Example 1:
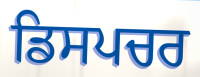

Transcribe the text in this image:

ਡਿਸਪਚਰ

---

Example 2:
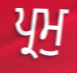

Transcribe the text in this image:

ਪ੍ਰਮੁ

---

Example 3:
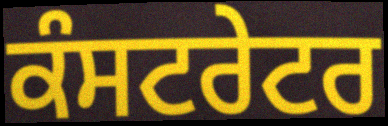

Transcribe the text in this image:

ਕੰਸਟਰੇਟਰ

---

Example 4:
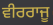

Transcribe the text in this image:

ਵੀਰਰਾਜੂ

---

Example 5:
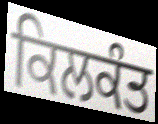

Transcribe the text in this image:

ਕਿਲਕੰਤ